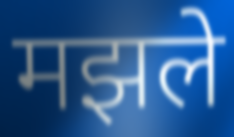
मझले